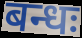
बन्धः